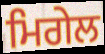
ਮਿਗੇਲ